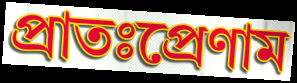
প্রাতঃপ্রেণাম